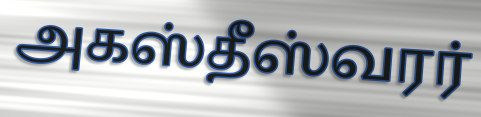
அகஸ்தீஸ்வரர்